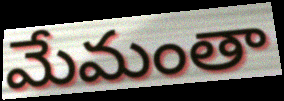
మేమంతా